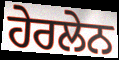
ਹੇਰਲੇਨ